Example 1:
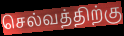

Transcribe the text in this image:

செல்வத்திற்கு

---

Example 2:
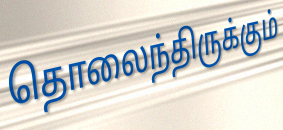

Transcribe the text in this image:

தொலைந்திருக்கும்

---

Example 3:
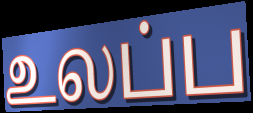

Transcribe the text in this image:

உலப்ப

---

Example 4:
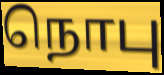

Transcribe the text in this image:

நொபு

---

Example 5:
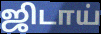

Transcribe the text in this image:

ஜிடாய்